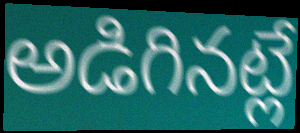
అడిగినట్లే